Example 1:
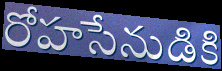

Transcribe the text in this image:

రోహసేనుడికి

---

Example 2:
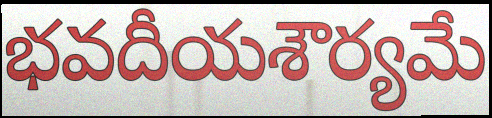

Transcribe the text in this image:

భవదీయశౌర్యమే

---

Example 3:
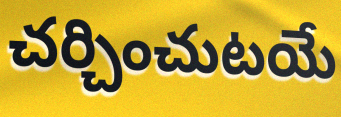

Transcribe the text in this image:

చర్చించుటయే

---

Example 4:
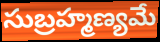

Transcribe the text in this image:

సుబ్రహ్మణ్యమే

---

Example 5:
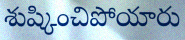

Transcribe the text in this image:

శుష్కించిపోయారు